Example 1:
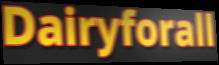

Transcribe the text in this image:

Dairyforall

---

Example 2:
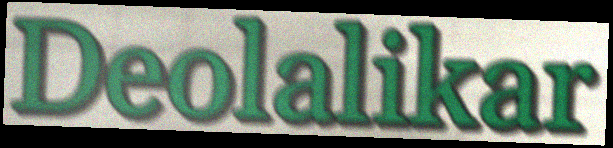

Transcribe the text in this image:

Deolalikar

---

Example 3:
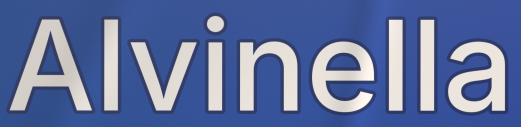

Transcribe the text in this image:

Alvinella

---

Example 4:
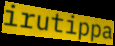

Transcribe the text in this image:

irutippa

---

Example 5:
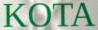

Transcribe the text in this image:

KOTA